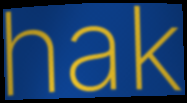
hak